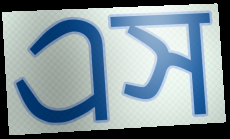
এস